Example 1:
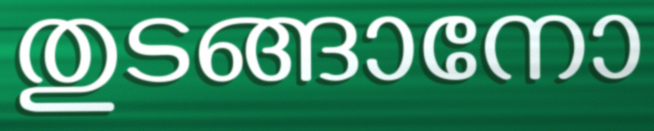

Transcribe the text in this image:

തുടങ്ങാനോ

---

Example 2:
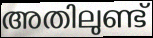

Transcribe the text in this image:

അതിലുണ്ട്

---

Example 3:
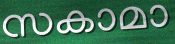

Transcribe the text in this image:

സകാമാ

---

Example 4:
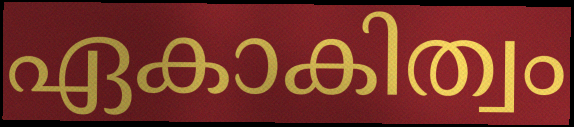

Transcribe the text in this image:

ഏകാകിത്വം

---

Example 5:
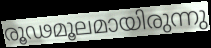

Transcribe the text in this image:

രൂഢമൂലമായിരുന്നു